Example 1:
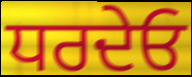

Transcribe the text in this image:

ਧਰਦੇਓ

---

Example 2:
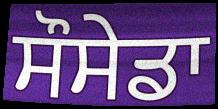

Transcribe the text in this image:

ਸੌਸੇਡਾ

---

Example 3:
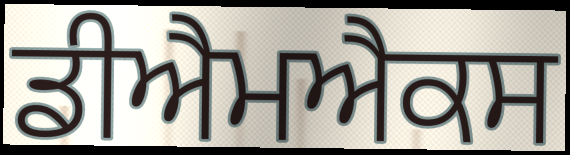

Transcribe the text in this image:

ਡੀਐਮਐਕਸ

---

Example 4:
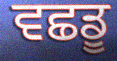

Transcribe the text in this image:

ਵਛਡੂ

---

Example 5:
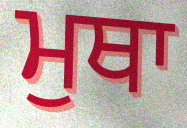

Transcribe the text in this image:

ਮੁਥਾ